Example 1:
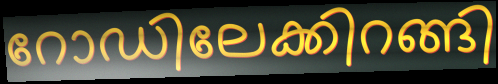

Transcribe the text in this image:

റോഡിലേക്കിറങ്ങി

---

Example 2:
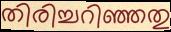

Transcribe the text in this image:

തിരിച്ചറിഞ്ഞതു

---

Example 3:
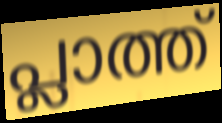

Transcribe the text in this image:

പ്ലാത്ത്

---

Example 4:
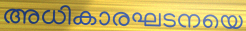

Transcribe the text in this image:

അധികാരഘടനയെ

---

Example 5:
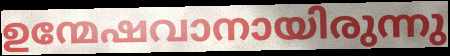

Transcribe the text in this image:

ഉന്മേഷവാനായിരുന്നു